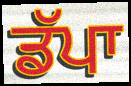
ਡੱਪਾ